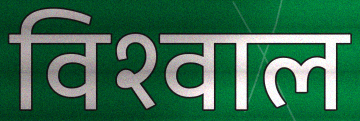
विश्वाल